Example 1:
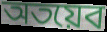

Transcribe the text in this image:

অতয়েব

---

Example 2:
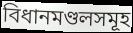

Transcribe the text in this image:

বিধানমণ্ডলসমূহ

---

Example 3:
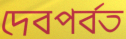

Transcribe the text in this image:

দেবপর্বত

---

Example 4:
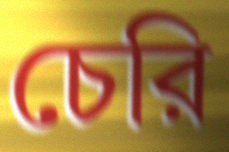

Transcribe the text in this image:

চেরি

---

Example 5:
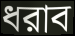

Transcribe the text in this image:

ধরাব